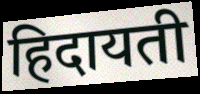
हिदायती